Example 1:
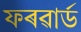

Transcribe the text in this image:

ফৰৱাৰ্ড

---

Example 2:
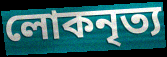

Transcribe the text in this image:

লোকনৃত্য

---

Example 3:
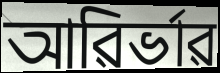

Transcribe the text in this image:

আৱিৰ্ভাৱ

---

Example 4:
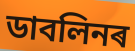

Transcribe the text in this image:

ডাবলিনৰ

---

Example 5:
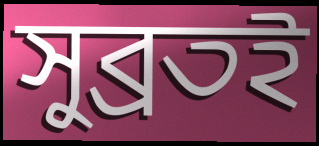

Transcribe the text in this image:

সুব্ৰতই